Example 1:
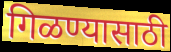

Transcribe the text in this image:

गिळण्यासाठी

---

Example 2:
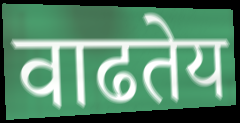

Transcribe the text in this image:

वाढतेय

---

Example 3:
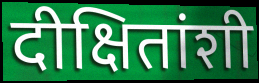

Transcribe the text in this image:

दीक्षितांशी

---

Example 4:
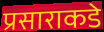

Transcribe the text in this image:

प्रसाराकडे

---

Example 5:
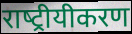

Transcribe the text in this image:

राष्ट्रीयीकरण